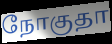
நோகுதா